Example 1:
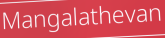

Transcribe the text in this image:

Mangalathevan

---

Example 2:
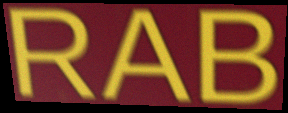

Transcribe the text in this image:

RAB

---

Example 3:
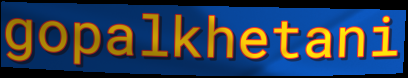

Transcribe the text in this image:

gopalkhetani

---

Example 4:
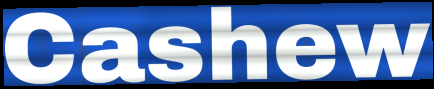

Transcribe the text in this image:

Cashew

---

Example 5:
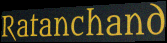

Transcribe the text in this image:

Ratanchand